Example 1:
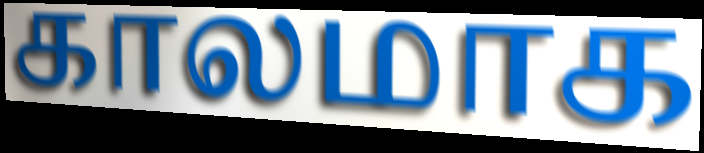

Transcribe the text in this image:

காலமாக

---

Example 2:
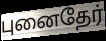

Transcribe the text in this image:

புனைதேர்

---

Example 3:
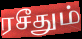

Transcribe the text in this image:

ரசீதும்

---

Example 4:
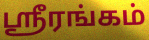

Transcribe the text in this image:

ஸ்ரீரங்கம்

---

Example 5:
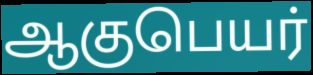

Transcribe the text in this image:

ஆகுபெயர்